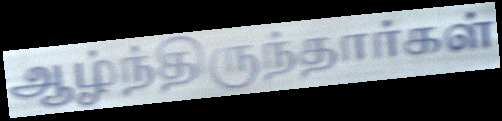
ஆழ்ந்திருந்தார்கள்